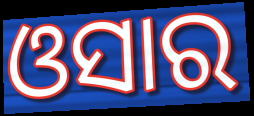
ଓସାର